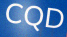
CQD